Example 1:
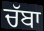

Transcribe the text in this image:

ਚੱਬਾ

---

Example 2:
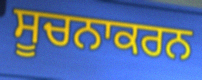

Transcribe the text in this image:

ਸੂਚਨਾਕਰਨ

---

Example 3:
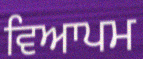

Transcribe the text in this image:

ਵਿਆਪਮ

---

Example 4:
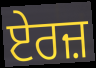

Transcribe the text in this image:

ਏਰਜ਼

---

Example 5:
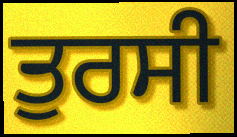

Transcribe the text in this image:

ਤੁਰਸੀ